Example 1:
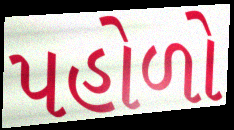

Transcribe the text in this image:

પહોળો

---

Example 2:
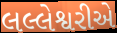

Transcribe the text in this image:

લલ્લેશ્વરીએ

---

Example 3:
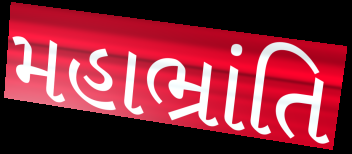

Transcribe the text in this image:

મહાભ્રાંતિ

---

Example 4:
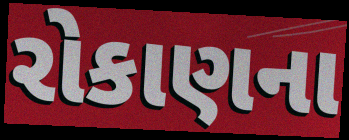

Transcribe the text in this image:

રોકાણના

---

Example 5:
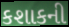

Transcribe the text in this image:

કશાકની